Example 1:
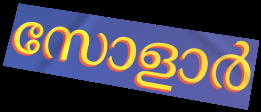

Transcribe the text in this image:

സോളാർ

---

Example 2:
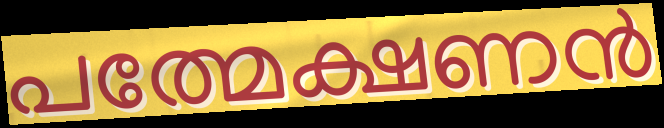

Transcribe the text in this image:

പത്മേക്ഷണൻ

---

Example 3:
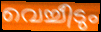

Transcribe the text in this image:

വെച്ചീടും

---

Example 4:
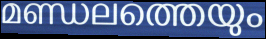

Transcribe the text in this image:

മണ്ഡലത്തെയും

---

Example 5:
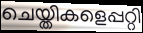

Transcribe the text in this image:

ചെയ്തികളെപ്പറ്റി